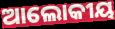
ଆଲୋକୀୟ